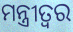
ମନ୍ତ୍ରୀତ୍ୱର